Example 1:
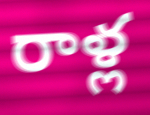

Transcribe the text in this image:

రాళ్ల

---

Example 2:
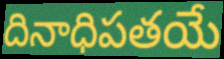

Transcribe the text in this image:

దినాధిపతయే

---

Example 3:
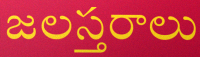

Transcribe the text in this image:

జలస్తరాలు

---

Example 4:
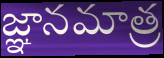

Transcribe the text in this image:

జ్ఞానమాత్ర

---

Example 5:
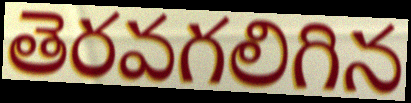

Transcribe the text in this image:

తెరవగలిగిన